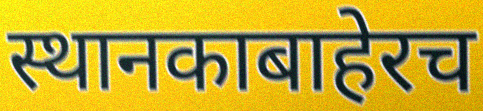
स्थानकाबाहेरच